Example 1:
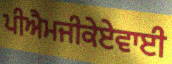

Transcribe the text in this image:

ਪੀਐਮਜੀਕੇਏਵਾਈ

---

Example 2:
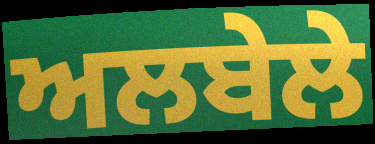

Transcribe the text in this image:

ਅਲਬੇਲੇ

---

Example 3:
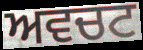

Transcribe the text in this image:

ਅਵਚਟ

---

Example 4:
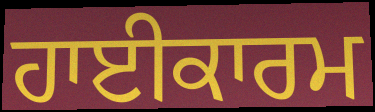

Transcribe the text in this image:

ਹਾਈਕਾਰਮ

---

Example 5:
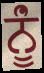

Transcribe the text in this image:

ਨੂਂੰ